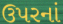
ઉપરનાં